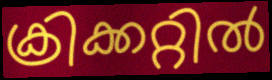
ക്രിക്കറ്റിൽ